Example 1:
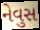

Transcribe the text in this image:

નેવુસ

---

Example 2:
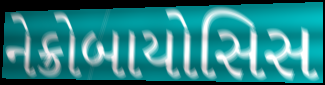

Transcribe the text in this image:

નેક્રોબાયોસિસ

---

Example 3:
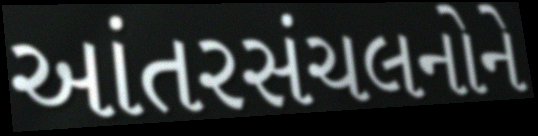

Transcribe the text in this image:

આંતરસંચલનોને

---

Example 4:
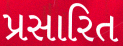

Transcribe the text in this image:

પ્રસારિત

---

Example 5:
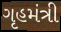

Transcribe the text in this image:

ગૃહમંત્રી